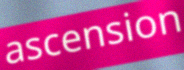
ascension